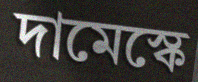
দামেস্কে